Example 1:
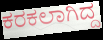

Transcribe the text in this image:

ಕರಕಲಾಗಿದ್ದ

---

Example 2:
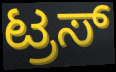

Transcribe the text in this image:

ಟ್ರಸ್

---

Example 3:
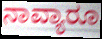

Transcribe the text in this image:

ನಾವ್ಯಾರೂ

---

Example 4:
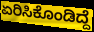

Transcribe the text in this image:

ಏರಿಸಿಕೊಂಡಿದ್ದೆ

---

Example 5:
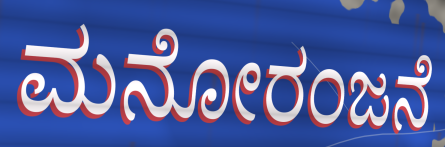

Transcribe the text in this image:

ಮನೋರಂಜನೆ